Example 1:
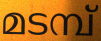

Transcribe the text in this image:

മടമ്പ്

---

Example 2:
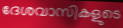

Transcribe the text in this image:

ദേശവാസികളുടെ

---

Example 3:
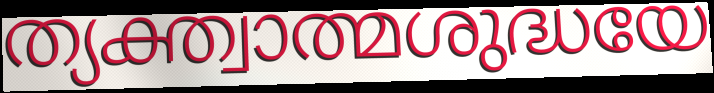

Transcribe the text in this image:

ത്യക്ത്വാത്മശുദ്ധയേ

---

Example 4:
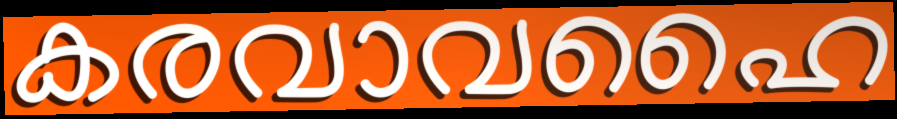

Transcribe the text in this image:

കരവാവഹൈ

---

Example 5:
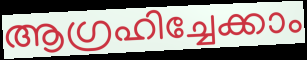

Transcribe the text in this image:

ആഗ്രഹിച്ചേക്കാം